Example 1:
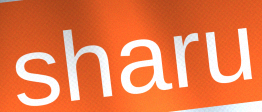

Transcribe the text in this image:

sharu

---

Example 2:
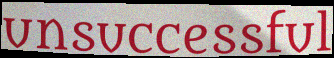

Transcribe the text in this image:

unsuccessful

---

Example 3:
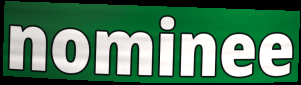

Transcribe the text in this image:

nominee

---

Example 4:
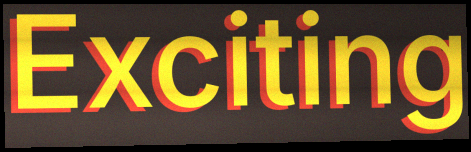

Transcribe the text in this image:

Exciting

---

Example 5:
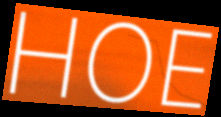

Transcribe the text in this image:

HOE